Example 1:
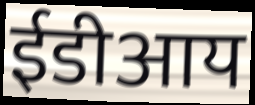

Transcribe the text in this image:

ईडीआय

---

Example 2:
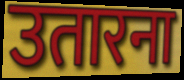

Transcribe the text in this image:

उतारना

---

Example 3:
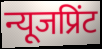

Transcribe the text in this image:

न्यूजप्रिंट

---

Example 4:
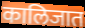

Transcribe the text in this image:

कालिजात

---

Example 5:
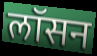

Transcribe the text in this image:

लॉसन